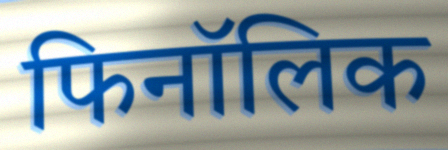
फिनॉलिक